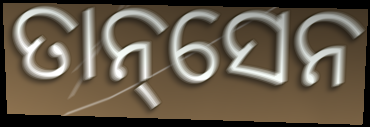
ତାନ୍‌ସେନ